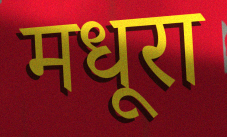
मधूरा